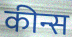
कीन्स